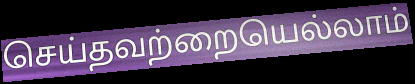
செய்தவற்றையெல்லாம்